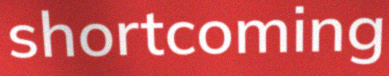
shortcoming